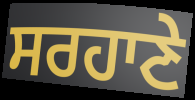
ਸਰਹਾਣੇ